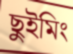
ছুইমিং